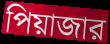
পিয়াজার